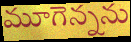
మూగెన్నను